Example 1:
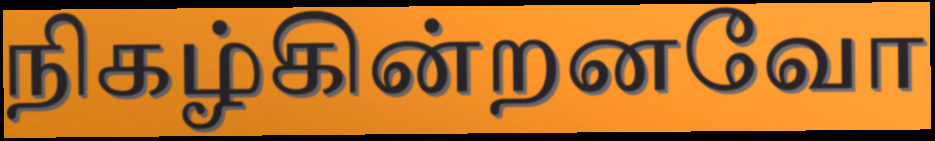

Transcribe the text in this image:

நிகழ்கின்றனவோ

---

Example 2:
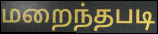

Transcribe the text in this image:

மறைந்தபடி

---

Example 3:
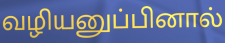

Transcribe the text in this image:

வழியனுப்பினால்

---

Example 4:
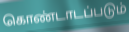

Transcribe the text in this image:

கொண்டாடப்படும்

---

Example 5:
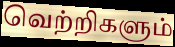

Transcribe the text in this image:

வெற்றிகளும்